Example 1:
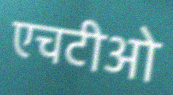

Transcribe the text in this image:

एचटीओ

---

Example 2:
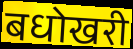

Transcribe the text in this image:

बधोखरी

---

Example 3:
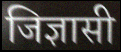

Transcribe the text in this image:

जिज्ञासी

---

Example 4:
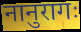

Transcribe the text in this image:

नानुरागः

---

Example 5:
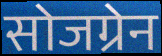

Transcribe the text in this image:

सोजग्रेन